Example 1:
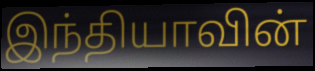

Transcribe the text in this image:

இந்தியாவின்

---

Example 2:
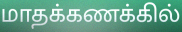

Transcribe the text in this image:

மாதக்கணக்கில்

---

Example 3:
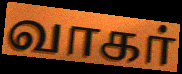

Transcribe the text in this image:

வாகர்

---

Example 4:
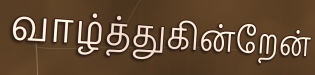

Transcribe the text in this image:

வாழ்த்துகின்றேன்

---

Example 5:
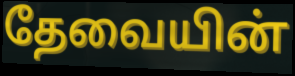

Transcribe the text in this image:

தேவையின்